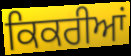
ਕਿਕਰੀਆਂ